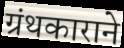
ग्रंथकाराने